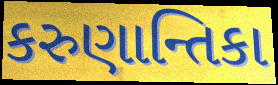
કરુણાન્તિકા